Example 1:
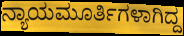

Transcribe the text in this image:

ನ್ಯಾಯಮೂರ್ತಿಗಳಾಗಿದ್ದ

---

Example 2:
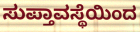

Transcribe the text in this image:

ಸುಪ್ತಾವಸ್ಥೆಯಿಂದ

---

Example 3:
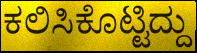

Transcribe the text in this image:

ಕಲಿಸಿಕೊಟ್ಟಿದ್ದು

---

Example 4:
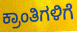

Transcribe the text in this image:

ಕ್ರಾಂತಿಗಳಿಗೆ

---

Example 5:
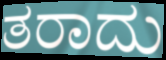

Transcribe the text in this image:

ತರಾದು